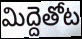
మిద్దెతోట